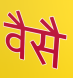
वैसै